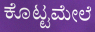
ಕೊಟ್ಟಮೇಲೆ